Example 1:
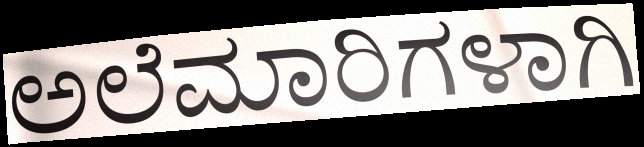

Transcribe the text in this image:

ಅಲೆಮಾರಿಗಳಾಗಿ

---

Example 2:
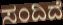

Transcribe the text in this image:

ಸಂದಿದೆ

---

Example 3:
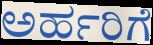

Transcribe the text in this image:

ಅರ್ಹರಿಗೆ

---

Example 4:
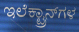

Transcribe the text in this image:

ಇಲೆಕ್ಟ್ರಾನ್‍ಗಳ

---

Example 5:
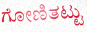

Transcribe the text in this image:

ಗೋಣಿತಟ್ಟು